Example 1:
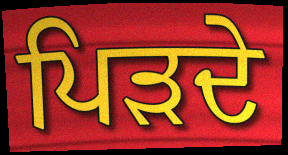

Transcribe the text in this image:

ਪਿੜਦੇ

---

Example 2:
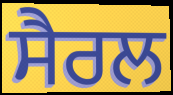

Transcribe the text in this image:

ਸੈਰਲ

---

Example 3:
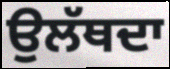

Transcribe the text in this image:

ਉਲੱਥਦਾ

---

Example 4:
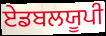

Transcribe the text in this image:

ਏਡਬਲਯੂਪੀ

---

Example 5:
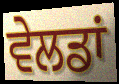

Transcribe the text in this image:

ਵੇਲਡਾਂ